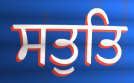
ਸਤੁਤਿ